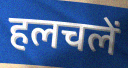
हलचलें